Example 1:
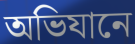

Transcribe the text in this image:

অভিযানে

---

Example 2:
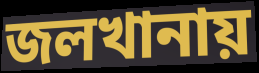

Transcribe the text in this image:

জলখানায়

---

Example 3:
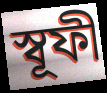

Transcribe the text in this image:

স্বূফী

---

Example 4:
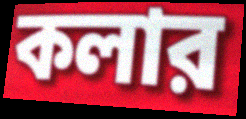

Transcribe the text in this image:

কলার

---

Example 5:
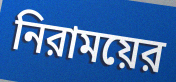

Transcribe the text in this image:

নিরাময়ের